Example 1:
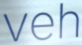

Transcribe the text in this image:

veh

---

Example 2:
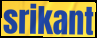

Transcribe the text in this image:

srikant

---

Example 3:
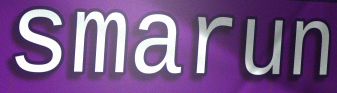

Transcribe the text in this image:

smarun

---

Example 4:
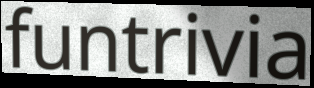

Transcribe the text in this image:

funtrivia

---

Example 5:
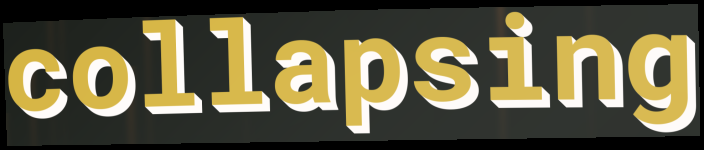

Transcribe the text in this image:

collapsing